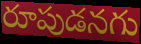
రూపుడనగు